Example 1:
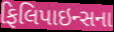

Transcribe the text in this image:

ફિલિપાઇન્સના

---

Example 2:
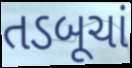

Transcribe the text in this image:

તડબૂચાં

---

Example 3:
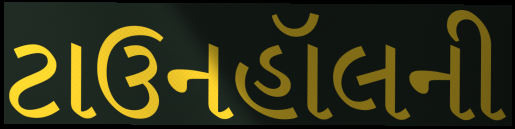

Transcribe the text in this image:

ટાઉનહૉલની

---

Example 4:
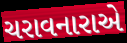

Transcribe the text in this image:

ચરાવનારાએ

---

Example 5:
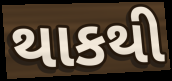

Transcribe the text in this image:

થાકથી